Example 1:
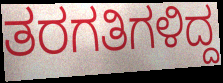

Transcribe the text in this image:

ತರಗತಿಗಳಿದ್ದ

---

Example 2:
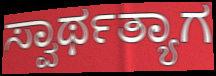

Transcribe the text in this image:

ಸ್ವಾರ್ಥತ್ಯಾಗ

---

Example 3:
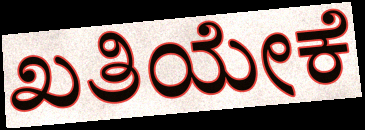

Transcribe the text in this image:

ಖತಿಯೇಕೆ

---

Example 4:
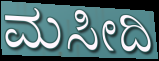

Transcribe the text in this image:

ಮಸೀದಿ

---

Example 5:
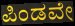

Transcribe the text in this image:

ಪಿಂಡವೇ